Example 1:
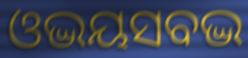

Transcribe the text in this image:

ଓଦ୍ଭୟସବଦ୍ଭ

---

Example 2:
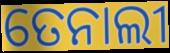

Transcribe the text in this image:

ତେନାଲୀ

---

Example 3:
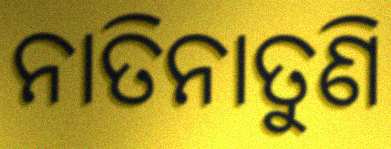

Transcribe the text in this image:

ନାତିନାତୁଣି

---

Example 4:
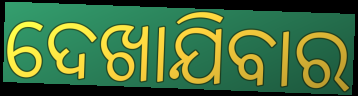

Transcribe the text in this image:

ଦେଖାଯିବାର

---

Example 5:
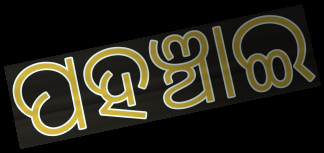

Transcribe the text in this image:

ପହଞ୍ଚାଇ